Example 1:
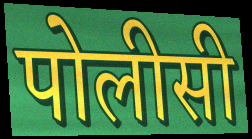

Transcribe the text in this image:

पोलीसी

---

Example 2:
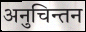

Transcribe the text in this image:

अनुचिन्तन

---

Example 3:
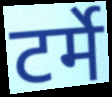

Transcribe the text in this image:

टर्मे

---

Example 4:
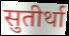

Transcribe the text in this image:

सुतीर्था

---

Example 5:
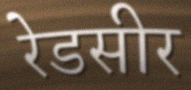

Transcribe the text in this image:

रेडसीर